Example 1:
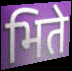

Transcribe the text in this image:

भिते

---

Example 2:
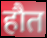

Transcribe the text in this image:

हौत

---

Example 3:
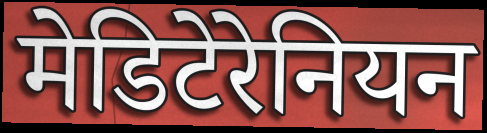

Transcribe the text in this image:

मेडिटेरेनियन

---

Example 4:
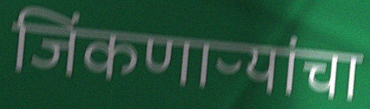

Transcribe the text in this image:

जिंकणाऱ्यांचा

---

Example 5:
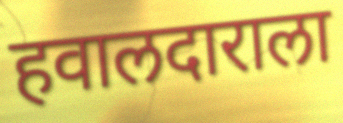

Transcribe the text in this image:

हवालदाराला